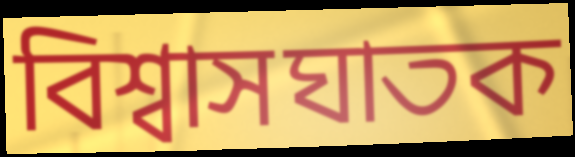
বিশ্বাসঘাতক